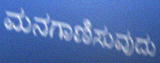
ಮನಗಾಣಿಸುವುದು